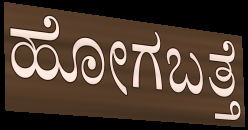
ಹೋಗಬತ್ತೆ